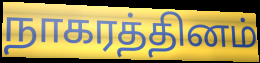
நாகரத்தினம்